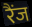
रैंज